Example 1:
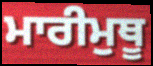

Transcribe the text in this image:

ਮਾਰੀਮੁਥੂ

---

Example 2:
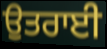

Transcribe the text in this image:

ਉਤਰਾਈ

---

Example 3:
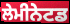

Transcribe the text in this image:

ਲੇਮੀਨੇਟਡ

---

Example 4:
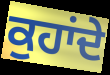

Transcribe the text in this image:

ਕੁਹਾਂਦੇ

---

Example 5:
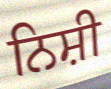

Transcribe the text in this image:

ਨਿਸ਼ੀ